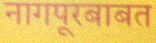
नागपूरबाबत